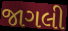
જાગલી